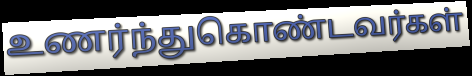
உணர்ந்துகொண்டவர்கள்